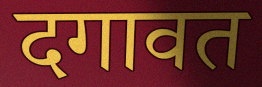
दगावत